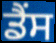
ਡੈਂਸ